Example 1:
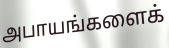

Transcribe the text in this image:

அபாயங்களைக்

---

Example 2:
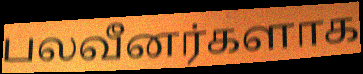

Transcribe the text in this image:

பலவீனர்களாக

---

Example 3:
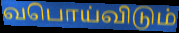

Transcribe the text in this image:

வபொய்விடும்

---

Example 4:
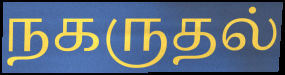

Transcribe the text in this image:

நகருதல்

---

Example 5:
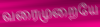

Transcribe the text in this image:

வரைமுறையே